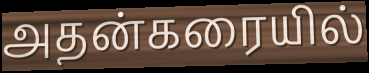
அதன்கரையில்